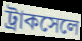
ট্রাকসেলে